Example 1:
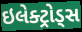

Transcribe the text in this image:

ઇલેક્ટ્રોડ્સ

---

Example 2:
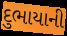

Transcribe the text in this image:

દુભાયાની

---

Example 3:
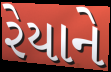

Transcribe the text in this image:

રેયાને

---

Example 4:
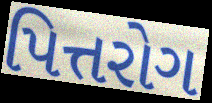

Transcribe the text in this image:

પિત્તરોગ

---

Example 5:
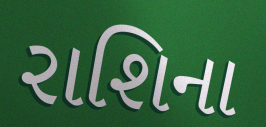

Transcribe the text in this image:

રાશિના